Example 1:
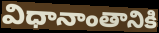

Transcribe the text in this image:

విధానాంతానికి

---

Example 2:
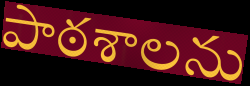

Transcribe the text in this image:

పాఠశాలను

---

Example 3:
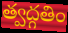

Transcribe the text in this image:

త్వద్గతిం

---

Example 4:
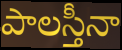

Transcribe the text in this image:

పాలస్తీనా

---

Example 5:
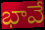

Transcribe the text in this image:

భావే